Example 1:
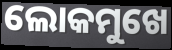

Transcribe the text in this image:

ଲୋକମୁଖେ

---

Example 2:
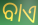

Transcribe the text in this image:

ବାଏ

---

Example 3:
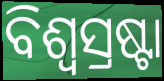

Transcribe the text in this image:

ବିଶ୍ୱସ୍ରଷ୍ଟା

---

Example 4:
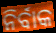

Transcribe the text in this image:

ନିର୍ବାକ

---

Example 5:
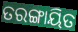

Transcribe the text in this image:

ତରଙ୍ଗାୟିତ